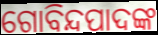
ଗୋବିନ୍ଦପାଦଙ୍କ